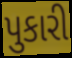
પુકારી